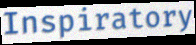
Inspiratory